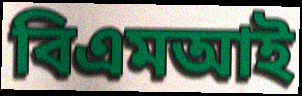
বিএমআই